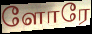
ளோரே